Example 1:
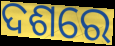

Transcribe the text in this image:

ଦଶରେ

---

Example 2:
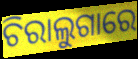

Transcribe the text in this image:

ଚିରାଲୁଗାରେ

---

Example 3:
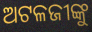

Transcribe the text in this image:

ଅଟଳଜୀଙ୍କୁ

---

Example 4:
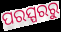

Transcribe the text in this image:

ପରସ୍ପରରୁ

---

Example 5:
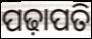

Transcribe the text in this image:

ପଢ଼ାପତି